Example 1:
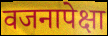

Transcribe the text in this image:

वजनापेक्षा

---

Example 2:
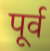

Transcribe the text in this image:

पूर्व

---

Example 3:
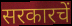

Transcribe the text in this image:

सरकारचें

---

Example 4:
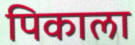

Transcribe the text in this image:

पिकाला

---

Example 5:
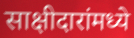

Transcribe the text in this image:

साक्षीदारांमध्ये